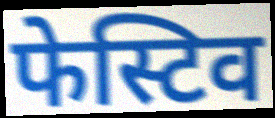
फेस्टिव